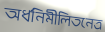
অর্ধনিমীলিতনেত্র